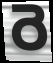
రె